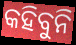
କହିବୁନି